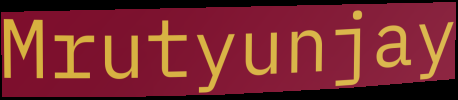
Mrutyunjay